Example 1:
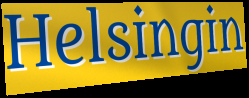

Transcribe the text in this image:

Helsingin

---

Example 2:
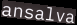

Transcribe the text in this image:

ansalva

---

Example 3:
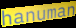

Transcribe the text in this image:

hanuman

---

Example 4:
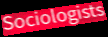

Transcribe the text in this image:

Sociologists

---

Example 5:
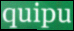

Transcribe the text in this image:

quipu